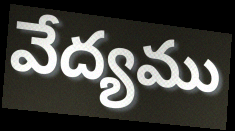
వేద్యము